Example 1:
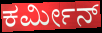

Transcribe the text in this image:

ಕರ್ಮೀನ್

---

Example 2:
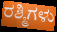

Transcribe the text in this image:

ರಶ್ಮಿಗಳು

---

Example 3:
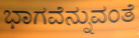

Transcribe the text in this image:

ಭಾಗವೆನ್ನುವಂತೆ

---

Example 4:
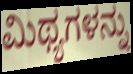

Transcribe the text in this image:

ಮಿಥ್ಯಗಳನ್ನು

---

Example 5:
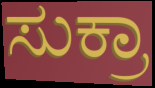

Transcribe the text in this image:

ಸುಕ್ರಾ